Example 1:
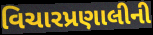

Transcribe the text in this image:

વિચારપ્રણાલીની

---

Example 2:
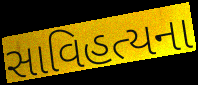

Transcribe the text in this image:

સાવિહત્યના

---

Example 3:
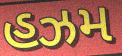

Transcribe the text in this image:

હઝમ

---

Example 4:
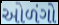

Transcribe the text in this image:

ઓળંગો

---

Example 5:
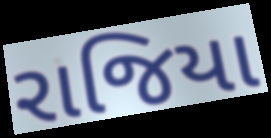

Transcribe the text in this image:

રાજિયા